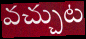
వచ్చుట